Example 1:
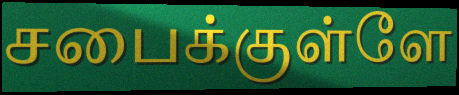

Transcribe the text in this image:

சபைக்குள்ளே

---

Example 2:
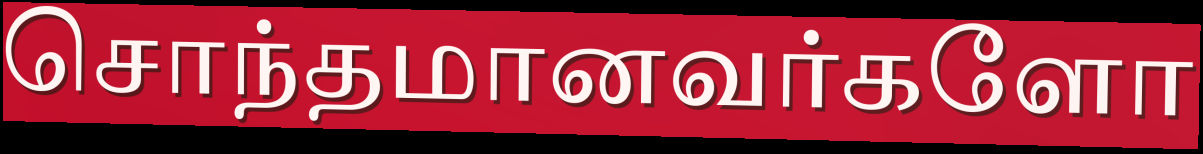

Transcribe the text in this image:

சொந்தமானவர்களோ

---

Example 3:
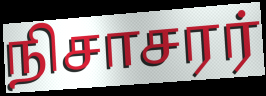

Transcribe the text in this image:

நிசாசரர்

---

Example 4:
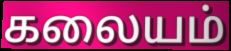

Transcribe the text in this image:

கலையம்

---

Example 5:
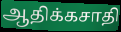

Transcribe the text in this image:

ஆதிக்கசாதி